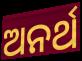
ଅନର୍ଥ